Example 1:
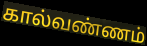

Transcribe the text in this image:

கால்வண்ணம்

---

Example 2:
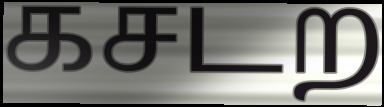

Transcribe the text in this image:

கசடற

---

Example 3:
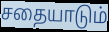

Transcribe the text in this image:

சதையாடும்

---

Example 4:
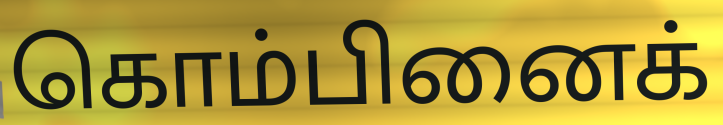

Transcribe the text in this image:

கொம்பினைக்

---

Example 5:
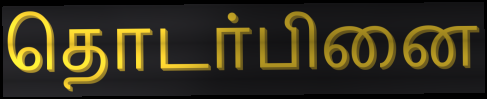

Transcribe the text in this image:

தொடர்பினை